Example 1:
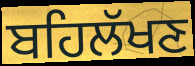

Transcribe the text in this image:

ਬਹਿਲੱਖਣ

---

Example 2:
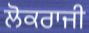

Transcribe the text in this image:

ਲੋਕਰਾਜੀ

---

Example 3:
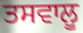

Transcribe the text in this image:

ਤਸਵਾਲੂ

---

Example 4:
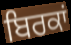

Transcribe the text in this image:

ਬਿਰਕਾਂ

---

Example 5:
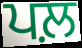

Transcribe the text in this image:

ਪਲ਼